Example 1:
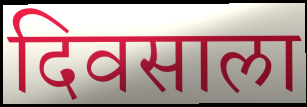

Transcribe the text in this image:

दिवसाला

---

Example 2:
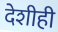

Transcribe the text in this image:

देशीही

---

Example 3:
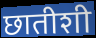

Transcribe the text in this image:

छातीशी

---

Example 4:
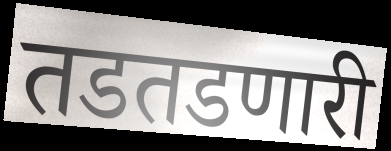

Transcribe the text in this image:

तडतडणारी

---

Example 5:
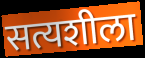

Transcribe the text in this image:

सत्यशीला